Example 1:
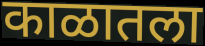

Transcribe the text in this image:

काळातला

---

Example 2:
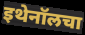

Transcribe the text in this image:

इथेनॉलचा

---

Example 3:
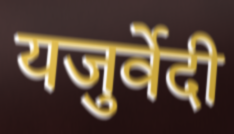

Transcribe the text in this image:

यजुर्वेदी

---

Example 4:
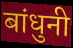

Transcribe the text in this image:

बांधुनी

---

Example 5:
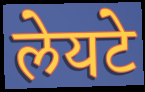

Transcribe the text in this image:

लेयटे